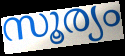
സൂര്യം